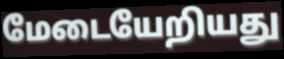
மேடையேறியது